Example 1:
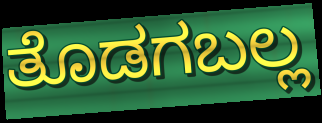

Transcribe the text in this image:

ತೊಡಗಬಲ್ಲ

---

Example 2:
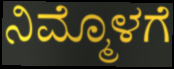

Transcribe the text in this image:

ನಿಮ್ಮೊಳಗೆ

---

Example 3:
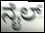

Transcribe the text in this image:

ನೈಲ್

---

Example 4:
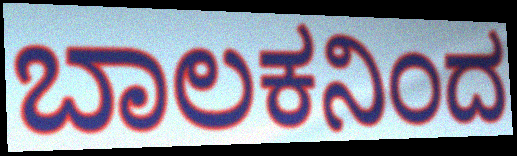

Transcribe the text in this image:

ಬಾಲಕನಿಂದ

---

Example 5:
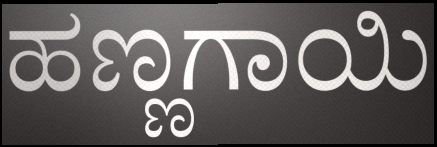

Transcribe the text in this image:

ಹಣ್ಣಗಾಯಿ